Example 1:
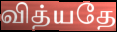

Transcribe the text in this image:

வித்யதே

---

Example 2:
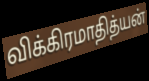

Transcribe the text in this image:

விக்கிரமாதித்யன்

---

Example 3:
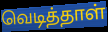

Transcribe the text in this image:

வெடித்தாள்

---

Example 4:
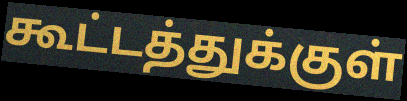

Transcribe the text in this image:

கூட்டத்துக்குள்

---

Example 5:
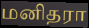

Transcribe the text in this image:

மனிதரா